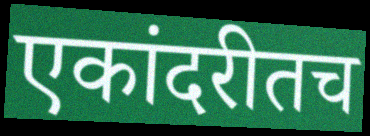
एकांदरीतच